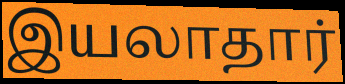
இயலாதார்